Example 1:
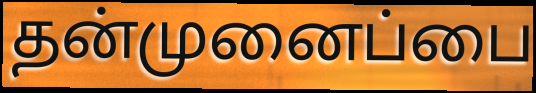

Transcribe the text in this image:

தன்முனைப்பை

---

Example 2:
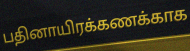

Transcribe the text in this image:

பதினாயிரக்கணக்காக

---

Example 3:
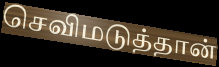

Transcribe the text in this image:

செவிமடுத்தான்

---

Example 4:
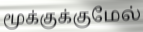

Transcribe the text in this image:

மூக்குக்குமேல்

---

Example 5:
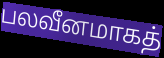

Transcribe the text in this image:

பலவீனமாகத்